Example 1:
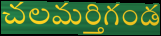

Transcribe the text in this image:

చలమర్తిగండ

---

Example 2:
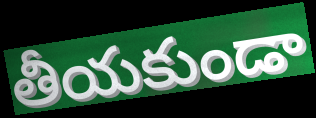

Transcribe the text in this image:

తీయకుండా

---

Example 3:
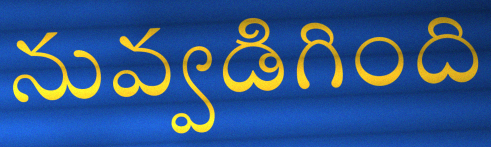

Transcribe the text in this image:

నువ్వడిగింది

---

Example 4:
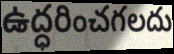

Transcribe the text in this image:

ఉద్ధరించగలదు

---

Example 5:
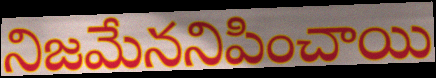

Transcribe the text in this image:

నిజమేననిపించాయి